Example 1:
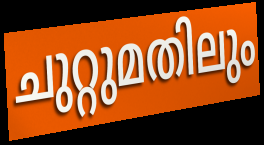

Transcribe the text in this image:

ചുറ്റുമതിലും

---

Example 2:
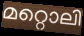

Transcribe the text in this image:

മറ്റൊലി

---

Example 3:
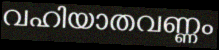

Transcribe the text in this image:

വഹിയാതവണ്ണം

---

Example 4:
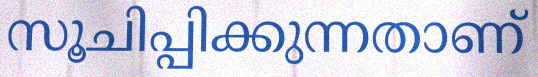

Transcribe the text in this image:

സൂചിപ്പിക്കുന്നതാണ്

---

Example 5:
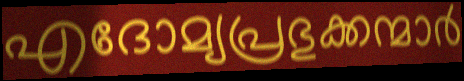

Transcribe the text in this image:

എദോമ്യപ്രഭുക്കന്മാർ